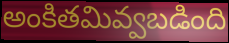
అంకితమివ్వబడింది